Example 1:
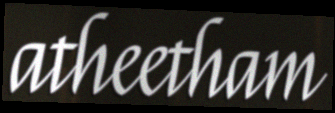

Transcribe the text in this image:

atheetham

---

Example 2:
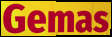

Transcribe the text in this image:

Gemas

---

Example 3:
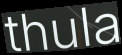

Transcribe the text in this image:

thula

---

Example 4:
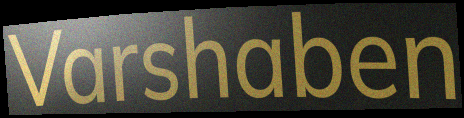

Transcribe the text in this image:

Varshaben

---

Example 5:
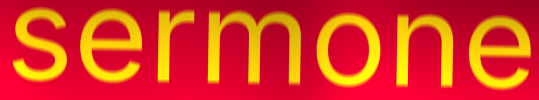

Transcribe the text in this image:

sermone